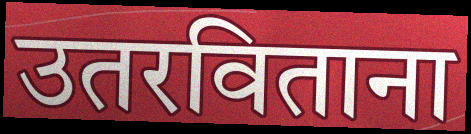
उतरविताना